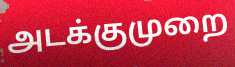
அடக்குமுறை